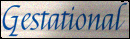
Gestational